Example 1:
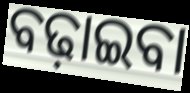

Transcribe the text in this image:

ବଢ଼ାଇବା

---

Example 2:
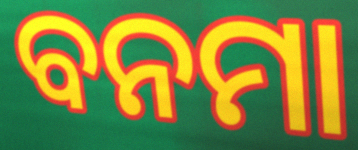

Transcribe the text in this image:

ବନମା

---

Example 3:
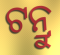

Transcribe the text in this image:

ଟନ୍ରୁ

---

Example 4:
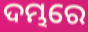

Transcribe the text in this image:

ଦମ୍ଭରେ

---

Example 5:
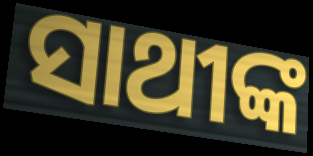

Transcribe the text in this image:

ସାଥୀଙ୍କ